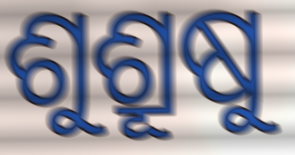
ଶୁଶ୍ରୂଷୁ